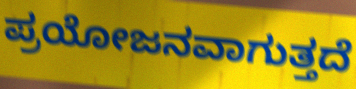
ಪ್ರಯೋಜನವಾಗುತ್ತದೆ